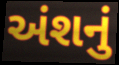
અંશનું